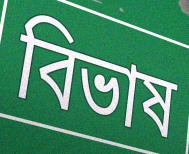
বিভাষ